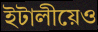
ইটালীয়েও